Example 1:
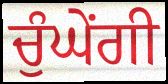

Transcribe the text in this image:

ਚੁੰਘੇਂਗੀ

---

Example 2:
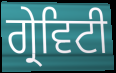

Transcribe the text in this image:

ਗ੍ਰੇਵਿਟੀ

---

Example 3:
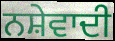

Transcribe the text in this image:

ਨਸ਼ੇਵਾਦੀ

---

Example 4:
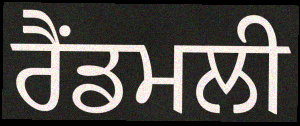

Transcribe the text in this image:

ਰੈਂਡਮਲੀ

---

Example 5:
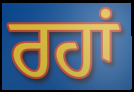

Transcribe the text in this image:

ਰਹਾਂ